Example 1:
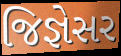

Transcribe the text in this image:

જિજ્ઞેસર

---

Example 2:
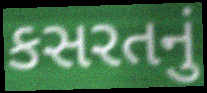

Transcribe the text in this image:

કસરતનું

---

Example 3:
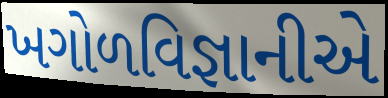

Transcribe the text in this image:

ખગોળવિજ્ઞાનીએ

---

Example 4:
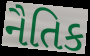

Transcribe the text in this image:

નૈતિક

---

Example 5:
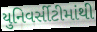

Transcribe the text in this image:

યુનિવર્સીટીમાંથી